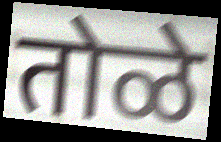
तोळे